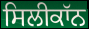
ਸਿਲੀਕਾੱਨ